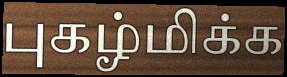
புகழ்மிக்க